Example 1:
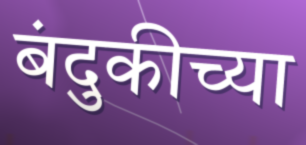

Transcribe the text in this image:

बंदुकीच्या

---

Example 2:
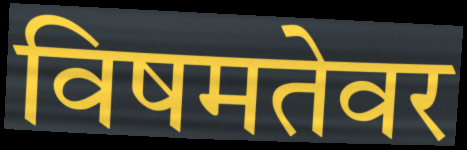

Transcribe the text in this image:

विषमतेवर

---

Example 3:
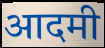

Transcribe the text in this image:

आदमी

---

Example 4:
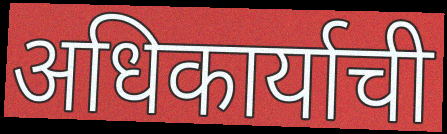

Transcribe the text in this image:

अधिकार्याची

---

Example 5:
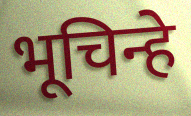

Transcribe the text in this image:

भूचिन्हे